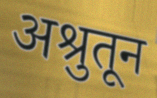
अश्रुतून